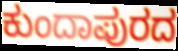
ಕುಂದಾಪುರದ